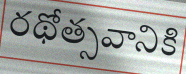
రథోత్సవానికి